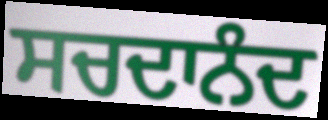
ਸਚਦਾਨੰਦ